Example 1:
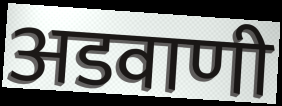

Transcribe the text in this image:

अडवाणी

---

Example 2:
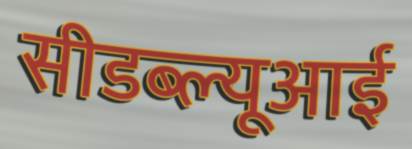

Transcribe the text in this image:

सीडब्ल्यूआई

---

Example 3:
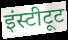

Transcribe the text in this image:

इंस्टीटूट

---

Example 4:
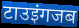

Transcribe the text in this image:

टाउइंगजब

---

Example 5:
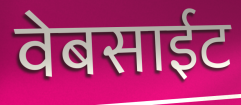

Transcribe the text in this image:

वेबसाईट